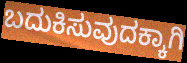
ಬದುಕಿಸುವುದಕ್ಕಾಗಿ